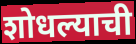
शोधल्याची